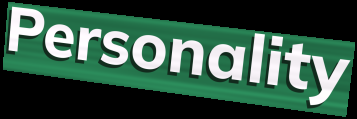
Personality